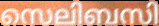
സെലിബസി